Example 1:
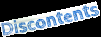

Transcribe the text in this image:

Discontents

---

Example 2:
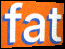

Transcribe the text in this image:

fat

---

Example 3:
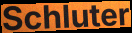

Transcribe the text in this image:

Schluter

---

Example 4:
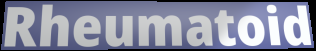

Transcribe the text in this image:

Rheumatoid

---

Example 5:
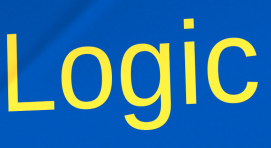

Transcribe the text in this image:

Logic